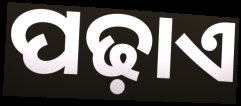
ପଢ଼ାଏ